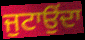
ਜੁਟਾਉਂਦਾ